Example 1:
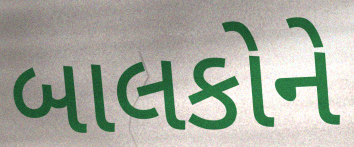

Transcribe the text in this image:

બાલકોને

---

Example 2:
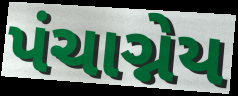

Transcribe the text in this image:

પંચાગ્નેય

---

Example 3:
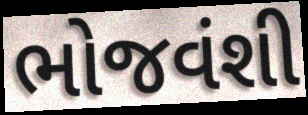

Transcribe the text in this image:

ભોજવંશી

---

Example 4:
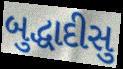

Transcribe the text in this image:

બુદ્ધાદીસુ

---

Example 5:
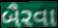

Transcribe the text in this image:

બૈરવા